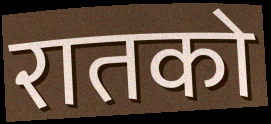
रातको